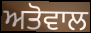
ਅਤੋਵਾਲ